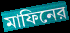
মাফিনের